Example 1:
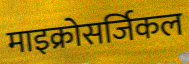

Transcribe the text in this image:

माइक्रोसर्जिकल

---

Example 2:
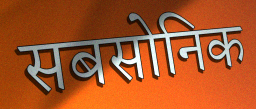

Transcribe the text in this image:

सबसोनिक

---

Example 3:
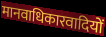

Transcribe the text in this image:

मानवाधिकारवादियों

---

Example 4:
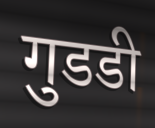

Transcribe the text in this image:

गुडडी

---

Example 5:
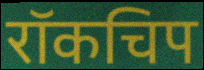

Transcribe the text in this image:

रॉकचिप